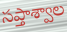
సప్తాశ్వాల